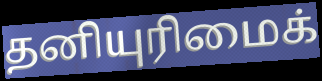
தனியுரிமைக்